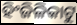
ହିଂଜିଳିକାଟୁ